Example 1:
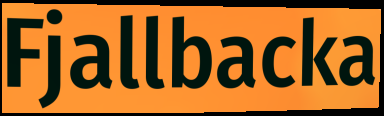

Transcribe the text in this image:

Fjallbacka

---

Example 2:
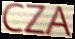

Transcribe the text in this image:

CZA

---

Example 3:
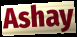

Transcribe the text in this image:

Ashay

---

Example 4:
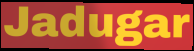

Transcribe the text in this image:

Jadugar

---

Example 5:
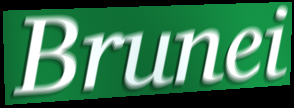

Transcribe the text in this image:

Brunei